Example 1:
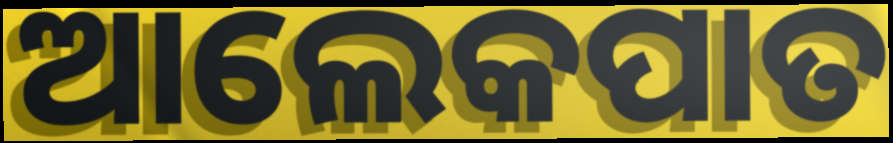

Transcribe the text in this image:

ଆଲେକପାତ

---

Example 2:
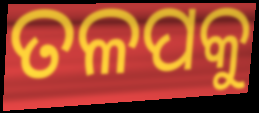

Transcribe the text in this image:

ତଳପକୁ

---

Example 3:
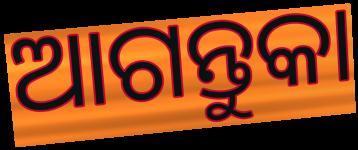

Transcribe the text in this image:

ଆଗନ୍ତୁକା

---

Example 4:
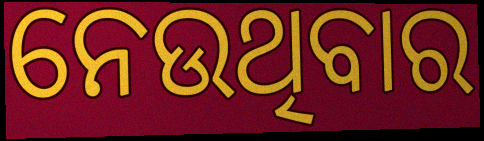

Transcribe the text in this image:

ନେଉଥିବାର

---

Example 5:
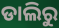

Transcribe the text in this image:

ଡାଲିରୁ